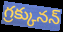
గ్రక్కునన్